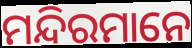
ମନ୍ଦିରମାନେ